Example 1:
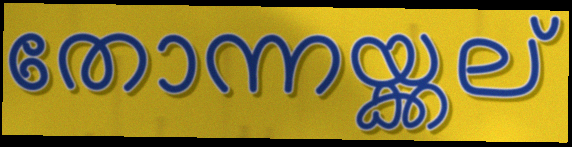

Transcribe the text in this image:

തോന്നയ്ക്കല്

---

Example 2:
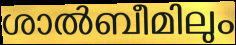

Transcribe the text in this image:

ശാൽബീമിലും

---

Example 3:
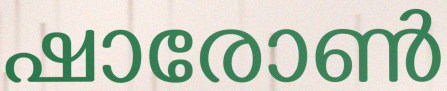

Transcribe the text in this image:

ഷാരോൺ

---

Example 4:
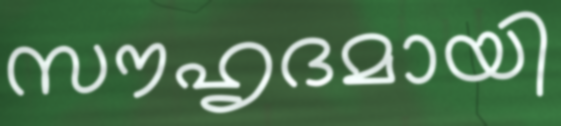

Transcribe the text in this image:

സൗഹൃദമായി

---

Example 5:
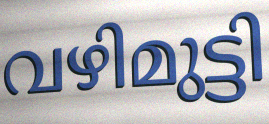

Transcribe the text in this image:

വഴിമുട്ടി